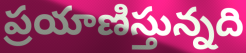
ప్రయాణిస్తున్నది